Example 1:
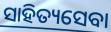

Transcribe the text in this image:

ସାହିତ୍ୟସେବା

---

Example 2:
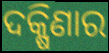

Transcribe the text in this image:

ଦକ୍ଷିଣାର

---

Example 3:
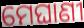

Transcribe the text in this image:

ମେଘାଣୀ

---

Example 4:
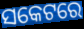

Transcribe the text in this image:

ସକେଟରେ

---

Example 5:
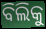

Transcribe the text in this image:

ବିଲିକୁ